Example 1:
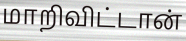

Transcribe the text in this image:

மாறிவிட்டான்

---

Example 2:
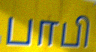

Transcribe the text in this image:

பாபி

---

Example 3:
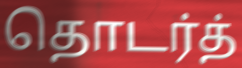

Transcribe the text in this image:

தொடர்த்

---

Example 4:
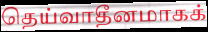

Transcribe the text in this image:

தெய்வாதீனமாகக்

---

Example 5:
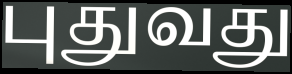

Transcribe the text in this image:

புதுவது